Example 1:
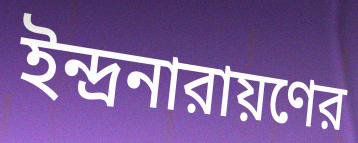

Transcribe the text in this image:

ইন্দ্রনারায়ণের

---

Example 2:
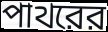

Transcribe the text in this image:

পাথরের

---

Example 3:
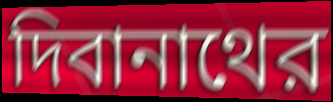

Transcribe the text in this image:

দিবানাথের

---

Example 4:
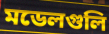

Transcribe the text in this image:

মডেলগুলি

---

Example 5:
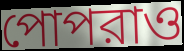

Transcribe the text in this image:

পোপরাও